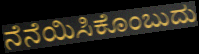
ನೆನೆಯಿಸಿಕೊಂಬುದು